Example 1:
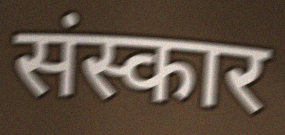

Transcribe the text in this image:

संस्कार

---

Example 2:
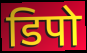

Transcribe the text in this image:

डिपो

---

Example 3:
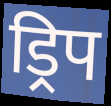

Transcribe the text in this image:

ड्रिप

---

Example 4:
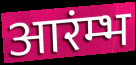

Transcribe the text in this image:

आरंम्भ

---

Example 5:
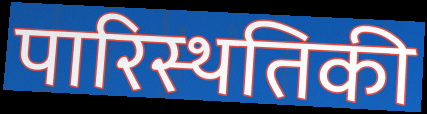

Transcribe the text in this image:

पारिस्थतिकी